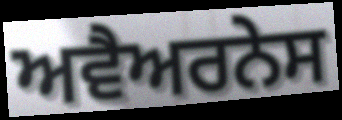
ਅਵੈਅਰਨੇਸ